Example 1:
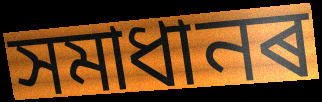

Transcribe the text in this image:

সমাধানৰ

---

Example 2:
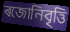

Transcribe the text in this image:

ৰজোনিবৃত্তি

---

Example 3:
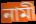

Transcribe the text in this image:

নামী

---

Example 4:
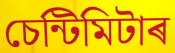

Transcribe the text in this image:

চেন্টিমিটাৰ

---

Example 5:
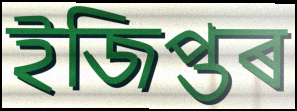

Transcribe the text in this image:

ইজিপ্তৰ